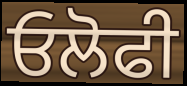
ਓਲੋਫੀ